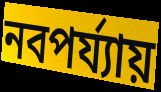
নবপর্য্যায়